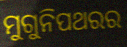
ମୁଗୁନିପଥରର